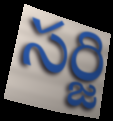
సర్జి